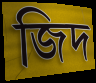
জিদ